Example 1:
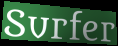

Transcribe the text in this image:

Surfer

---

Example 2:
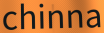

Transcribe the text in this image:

chinna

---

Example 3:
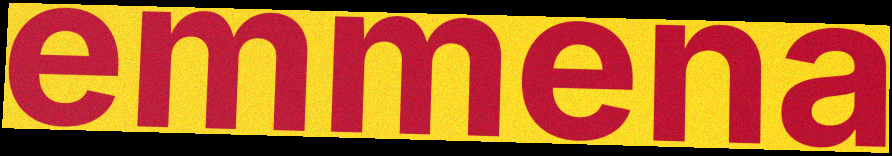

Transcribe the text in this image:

emmena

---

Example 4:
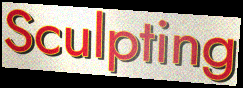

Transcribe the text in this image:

Sculpting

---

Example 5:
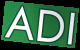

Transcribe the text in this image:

ADI